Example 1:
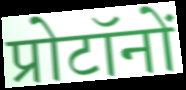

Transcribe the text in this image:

प्रोटॉनों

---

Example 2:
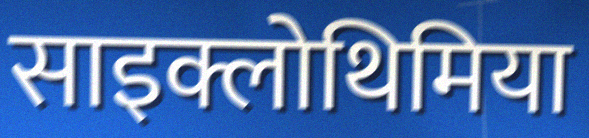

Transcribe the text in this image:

साइक्लोथिमिया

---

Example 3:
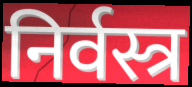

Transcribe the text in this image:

निर्वस्त्र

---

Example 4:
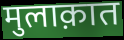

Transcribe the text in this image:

मुलाक़ात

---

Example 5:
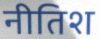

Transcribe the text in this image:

नीतिश